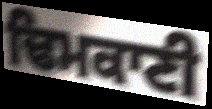
ਢਿਮਕਾਣੀ